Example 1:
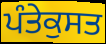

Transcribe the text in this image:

ਪੰਤੇਕੁਸਤ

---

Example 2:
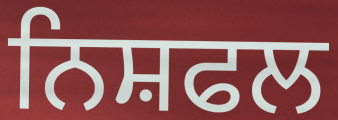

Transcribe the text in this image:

ਨਿਸ਼ਫਲ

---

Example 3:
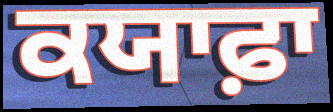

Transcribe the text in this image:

ਕਯਾਫ਼ਾ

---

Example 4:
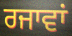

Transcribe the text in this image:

ਰਜਾਵਾਂ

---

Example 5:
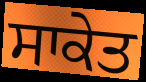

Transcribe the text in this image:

ਸਾਕੇਤ